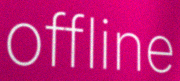
offline